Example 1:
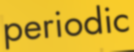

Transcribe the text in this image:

periodic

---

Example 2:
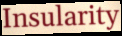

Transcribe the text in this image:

Insularity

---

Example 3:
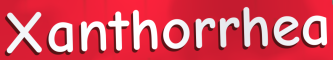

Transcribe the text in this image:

Xanthorrhea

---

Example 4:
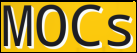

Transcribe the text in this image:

MOCs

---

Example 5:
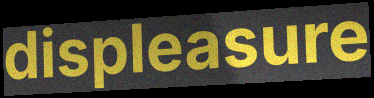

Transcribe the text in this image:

displeasure